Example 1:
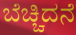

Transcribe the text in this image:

ಬೆಚ್ಚಿದನೆ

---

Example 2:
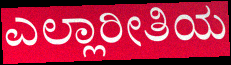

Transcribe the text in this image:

ಎಲ್ಲಾರೀತಿಯ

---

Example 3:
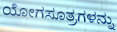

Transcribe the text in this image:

ಯೋಗಸೂತ್ರಗಳನ್ನು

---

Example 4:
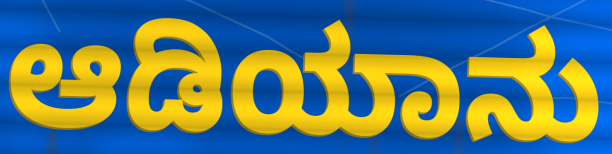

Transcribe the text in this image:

ಆಡಿಯಾನು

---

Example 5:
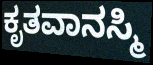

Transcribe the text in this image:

ಕೃತವಾನಸ್ಮಿ